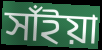
সাঁইয়া